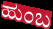
ಹುಂಬ